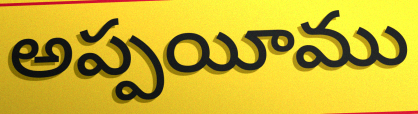
అప్పయీము